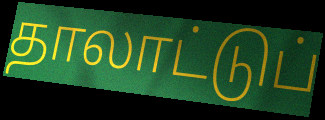
தாலாட்டுப்